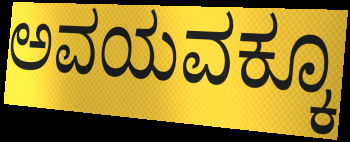
ಅವಯವಕ್ಕೂ